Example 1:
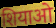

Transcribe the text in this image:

शियाओ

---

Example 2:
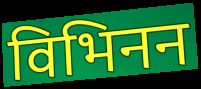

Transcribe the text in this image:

विभिनन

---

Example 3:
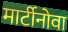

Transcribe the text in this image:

मार्टीनोवा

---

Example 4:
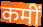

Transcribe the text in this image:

कमीं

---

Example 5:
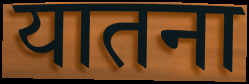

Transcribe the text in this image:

यातना